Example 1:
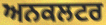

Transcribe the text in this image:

ਅਨਕਲਟਰ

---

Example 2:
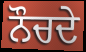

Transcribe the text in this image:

ਨੌਚਦੇ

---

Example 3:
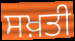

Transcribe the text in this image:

ਸਖ਼ਤੀ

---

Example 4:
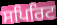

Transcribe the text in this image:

ਸਪਿਰਿਟ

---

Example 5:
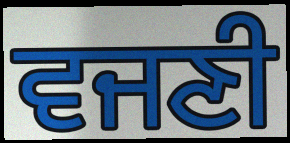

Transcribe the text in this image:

ਵਜਣੀ